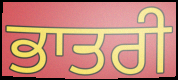
ਭਾਤਰੀ